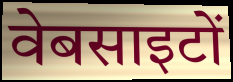
वेबसाइटों